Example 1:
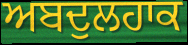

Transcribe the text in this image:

ਅਬਦੁਲਹਾਕ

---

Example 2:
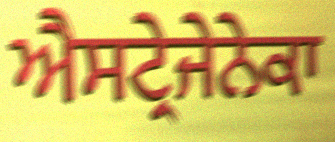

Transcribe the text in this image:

ਐਸਟ੍ਰੇਜੇਨੇਕਾ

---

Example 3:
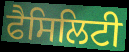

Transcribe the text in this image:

ਫੈਸਿਲਿਟੀ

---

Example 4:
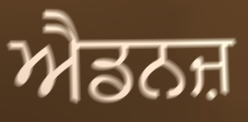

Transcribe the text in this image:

ਐਡਨਜ਼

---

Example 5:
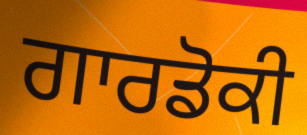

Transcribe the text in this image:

ਗਾਰਡੋਕੀ